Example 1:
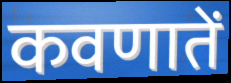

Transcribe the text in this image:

कवणातें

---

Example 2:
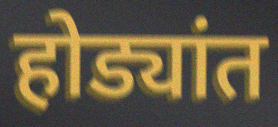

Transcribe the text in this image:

होड्यांत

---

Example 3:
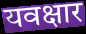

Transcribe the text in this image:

यवक्षार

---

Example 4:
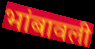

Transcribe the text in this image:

भांबावली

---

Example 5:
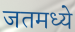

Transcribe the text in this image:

जतमध्ये